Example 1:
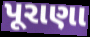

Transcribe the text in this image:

પૂરાણા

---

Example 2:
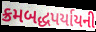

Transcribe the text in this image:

ક્રમબદ્ધપર્યાયની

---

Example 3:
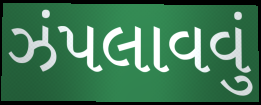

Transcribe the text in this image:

ઝંપલાવવું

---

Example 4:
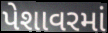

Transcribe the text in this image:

પેશાવરમાં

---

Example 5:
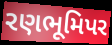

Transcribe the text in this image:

રણભૂમિપર